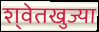
श्वेतखुज्या